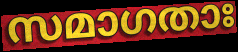
സമാഗതാഃ